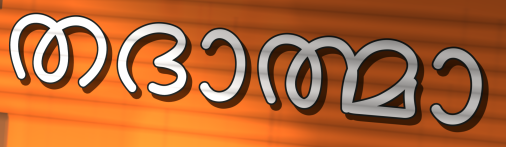
തദാത്മാ